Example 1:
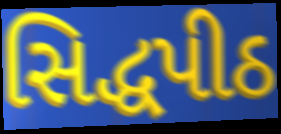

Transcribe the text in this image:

સિદ્ધપીઠ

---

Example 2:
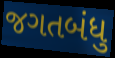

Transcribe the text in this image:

જગતબંધુ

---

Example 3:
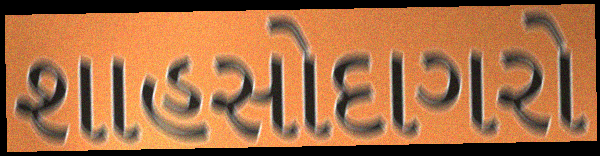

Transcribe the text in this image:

શાહસોદાગરો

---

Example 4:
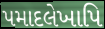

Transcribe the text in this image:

પમાદલેખાપિ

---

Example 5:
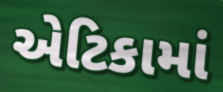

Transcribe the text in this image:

એટિકામાં